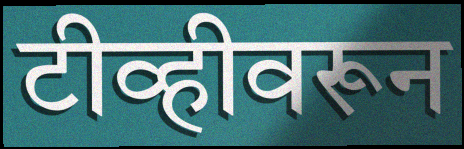
टीव्हीवरून